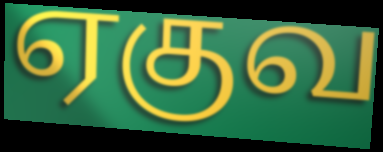
ஏகுவ